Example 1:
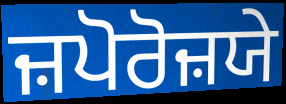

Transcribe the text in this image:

ਜ਼ਪੋਰੋਜ਼ਯੇ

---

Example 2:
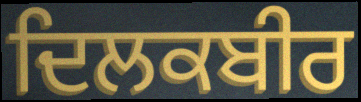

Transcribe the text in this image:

ਦਿਲਕਬੀਰ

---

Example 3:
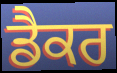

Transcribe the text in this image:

ਡੈਕਰ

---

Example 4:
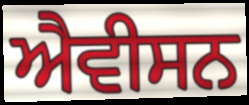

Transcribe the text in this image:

ਐਵੀਸਨ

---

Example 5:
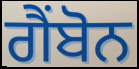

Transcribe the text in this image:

ਗੈਂਬੋਨ